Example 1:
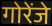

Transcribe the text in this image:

गोरेंजे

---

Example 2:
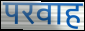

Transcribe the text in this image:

परवाह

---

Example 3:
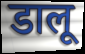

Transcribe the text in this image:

डालू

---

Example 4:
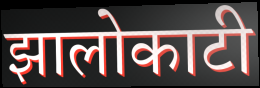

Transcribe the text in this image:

झालोकाटी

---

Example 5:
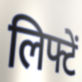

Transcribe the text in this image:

लिफ्टें